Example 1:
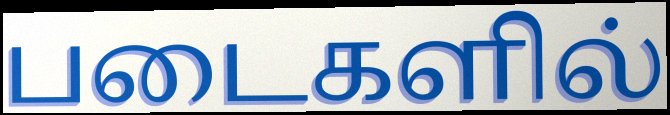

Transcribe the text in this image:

படைகளில்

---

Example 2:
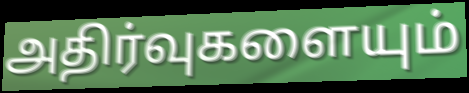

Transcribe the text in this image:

அதிர்வுகளையும்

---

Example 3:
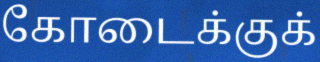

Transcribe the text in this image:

கோடைக்குக்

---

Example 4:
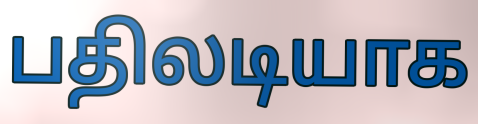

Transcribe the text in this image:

பதிலடியாக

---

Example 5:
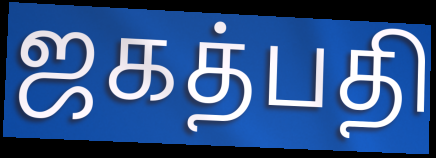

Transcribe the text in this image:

ஜகத்பதி